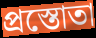
প্রস্তোতা